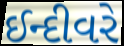
ઈન્દીવરે